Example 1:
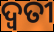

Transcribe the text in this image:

ଦ୍ଵତୀ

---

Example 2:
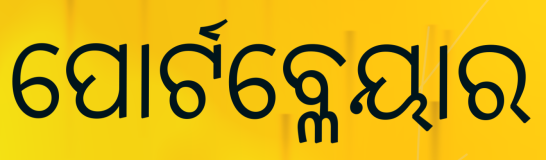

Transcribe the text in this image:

ପୋର୍ଟବ୍ଳେୟାର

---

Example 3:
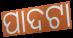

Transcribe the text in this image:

ପାଦଟା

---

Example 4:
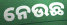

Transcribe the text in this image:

ନେଉଛ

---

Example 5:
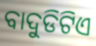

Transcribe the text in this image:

ବାଦୁଡିଟିଏ